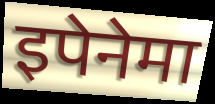
इपेनेमा